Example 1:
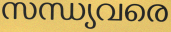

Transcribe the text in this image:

സന്ധ്യവരെ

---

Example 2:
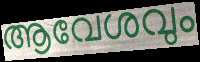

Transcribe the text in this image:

ആവേശവും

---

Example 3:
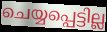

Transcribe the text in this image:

ചെയ്യപ്പെട്ടില്ല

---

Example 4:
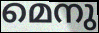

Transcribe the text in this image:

മെനു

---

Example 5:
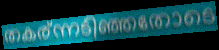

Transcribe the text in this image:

തകര്ന്നടിഞ്ഞതോടെ